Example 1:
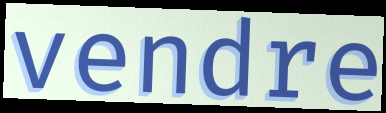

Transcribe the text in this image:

vendre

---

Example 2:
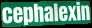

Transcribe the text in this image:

cephalexin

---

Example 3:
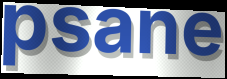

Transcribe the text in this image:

psane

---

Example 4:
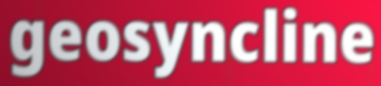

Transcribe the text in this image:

geosyncline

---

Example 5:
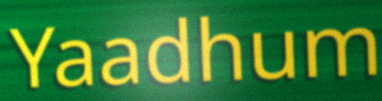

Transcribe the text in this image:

Yaadhum